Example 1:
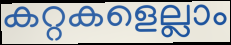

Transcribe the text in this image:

കറ്റകളെല്ലാം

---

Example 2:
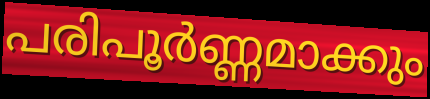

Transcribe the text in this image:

പരിപൂർണ്ണമാക്കും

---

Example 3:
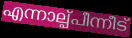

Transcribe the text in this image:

എന്നാല്പ്പീന്നീട്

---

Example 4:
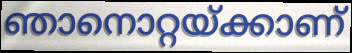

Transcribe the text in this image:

ഞാനൊറ്റയ്ക്കാണ്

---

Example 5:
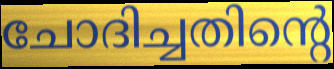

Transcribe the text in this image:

ചോദിച്ചതിന്റെ